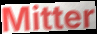
Mitter